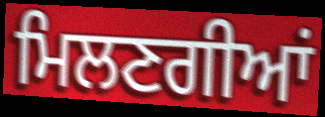
ਮਿਲਣਗੀਆਂ